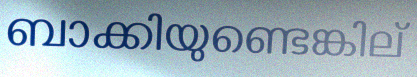
ബാക്കിയുണ്ടെങ്കില്